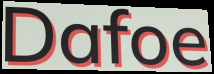
Dafoe